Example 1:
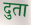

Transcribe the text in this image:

दुता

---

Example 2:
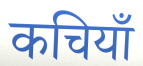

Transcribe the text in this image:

कचियाँ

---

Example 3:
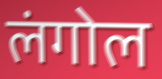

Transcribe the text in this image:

लंगोल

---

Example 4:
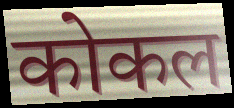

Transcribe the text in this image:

कोकल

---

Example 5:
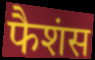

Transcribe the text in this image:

फैशंस